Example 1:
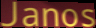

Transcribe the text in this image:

Janos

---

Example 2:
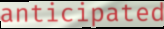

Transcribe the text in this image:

anticipated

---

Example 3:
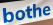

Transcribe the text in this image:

bothe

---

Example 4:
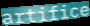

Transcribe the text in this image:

artifice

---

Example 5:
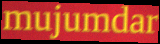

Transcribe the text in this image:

mujumdar